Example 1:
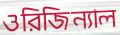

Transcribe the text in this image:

ওরিজিন্যাল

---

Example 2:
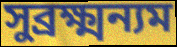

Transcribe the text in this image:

সুব্রক্ষ্মন্যম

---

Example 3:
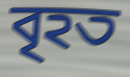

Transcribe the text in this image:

বৃহত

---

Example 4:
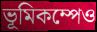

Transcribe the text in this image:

ভূমিকম্পেও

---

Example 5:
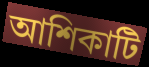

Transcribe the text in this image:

আশিকাটি